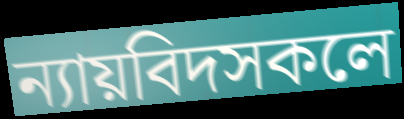
ন্যায়বিদসকলে